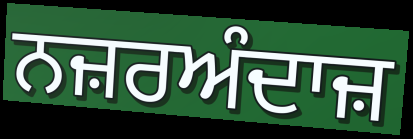
ਨਜ਼ਰਅੰਦਾਜ਼